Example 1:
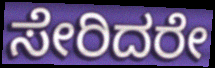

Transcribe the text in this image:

ಸೇರಿದರೇ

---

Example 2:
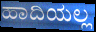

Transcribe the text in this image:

ಹಾದಿಯಲ್ಲ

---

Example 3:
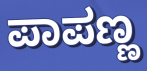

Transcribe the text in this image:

ಪಾಪಣ್ಣ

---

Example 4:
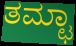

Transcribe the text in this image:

ತಮ್ಟಾ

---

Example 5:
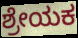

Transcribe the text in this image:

ಶ್ರೇಯಕ